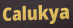
Calukya